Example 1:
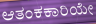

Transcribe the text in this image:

ಆತಂಕಕಾರಿಯೇ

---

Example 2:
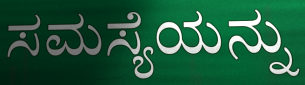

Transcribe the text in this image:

ಸಮಸ್ಯೆಯನ್ನು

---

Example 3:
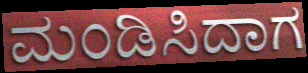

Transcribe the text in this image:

ಮಂಡಿಸಿದಾಗ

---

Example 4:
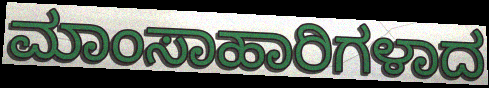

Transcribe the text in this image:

ಮಾಂಸಾಹಾರಿಗಳಾದ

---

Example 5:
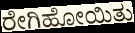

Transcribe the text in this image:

ರೇಗಿಹೋಯಿತು